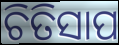
ଚିତିସାପ